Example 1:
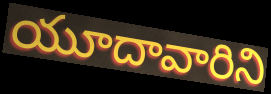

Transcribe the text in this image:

యూదావారిని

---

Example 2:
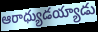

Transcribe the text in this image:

ఆరాధ్యుడయ్యాడు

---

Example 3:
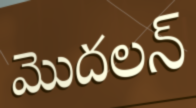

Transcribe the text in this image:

మొదలన్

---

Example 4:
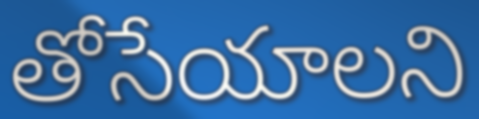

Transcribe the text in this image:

తోసేయాలని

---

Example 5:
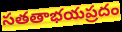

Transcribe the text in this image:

సతతాభయప్రదం